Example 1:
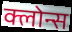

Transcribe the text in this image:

क्लोन्स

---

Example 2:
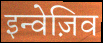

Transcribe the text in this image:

इन्वेज़िव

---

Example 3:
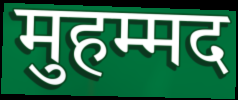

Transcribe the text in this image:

मुहम्‍मद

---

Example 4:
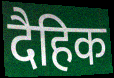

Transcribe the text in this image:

दैहिक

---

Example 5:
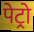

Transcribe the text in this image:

पेट्रो